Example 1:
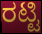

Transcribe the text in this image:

ರಟ್ಟಿ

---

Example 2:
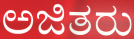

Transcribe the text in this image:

ಅಜಿತರು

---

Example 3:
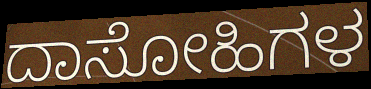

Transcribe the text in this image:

ದಾಸೋಹಿಗಳ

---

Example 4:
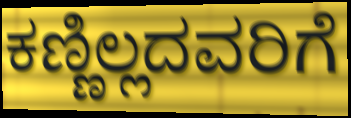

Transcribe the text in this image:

ಕಣ್ಣಿಲ್ಲದವರಿಗೆ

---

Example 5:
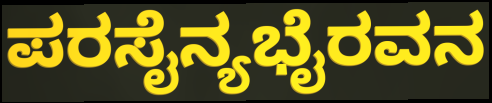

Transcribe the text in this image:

ಪರಸೈನ್ಯಭೈರವನ